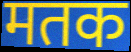
मतक